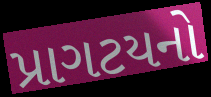
પ્રાગટયનો